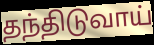
தந்திடுவாய்